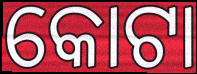
କୋଟା